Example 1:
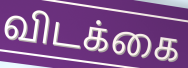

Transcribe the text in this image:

விடக்கை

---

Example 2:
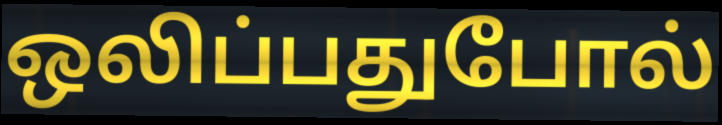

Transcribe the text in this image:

ஒலிப்பதுபோல்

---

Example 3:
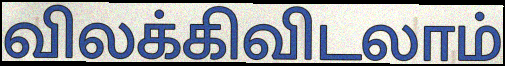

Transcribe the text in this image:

விலக்கிவிடலாம்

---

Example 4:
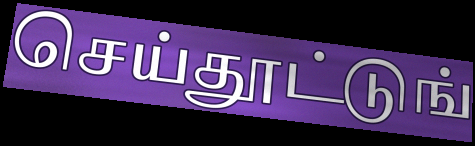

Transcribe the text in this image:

செய்தூட்டுங்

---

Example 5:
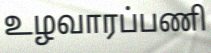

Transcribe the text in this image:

உழவாரப்பணி